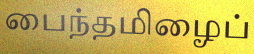
பைந்தமிழைப்